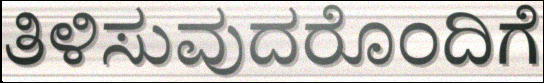
ತಿಳಿಸುವುದರೊಂದಿಗೆ